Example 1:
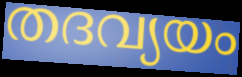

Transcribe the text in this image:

തദവ്യയം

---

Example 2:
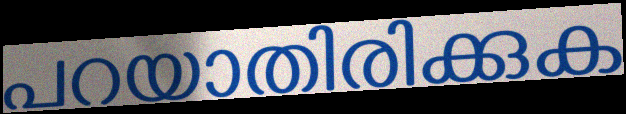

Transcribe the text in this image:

പറയാതിരിക്കുക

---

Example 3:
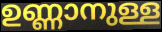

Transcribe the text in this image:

ഉണ്ണാനുള്ള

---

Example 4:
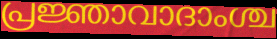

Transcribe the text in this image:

പ്രജ്ഞാവാദാംശ്ച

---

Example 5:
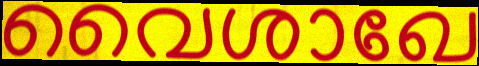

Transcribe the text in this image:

വൈശാഖേ